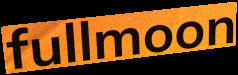
fullmoon